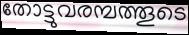
തോട്ടുവരമ്പത്തൂടെ